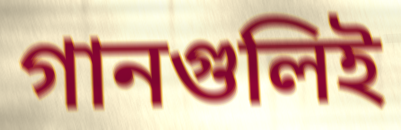
গানগুলিই